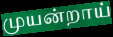
முயன்றாய்